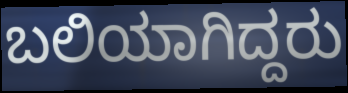
ಬಲಿಯಾಗಿದ್ದರು